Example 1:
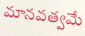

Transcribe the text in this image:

మానవత్వమే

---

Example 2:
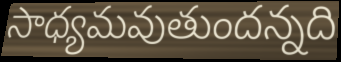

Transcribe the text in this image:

సాధ్యమవుతుందన్నది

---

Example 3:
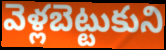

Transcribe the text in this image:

వెళ్లబెట్టుకుని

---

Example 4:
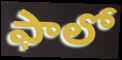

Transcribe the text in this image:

ఫాలో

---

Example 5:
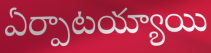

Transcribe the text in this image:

ఏర్పాటయ్యాయి